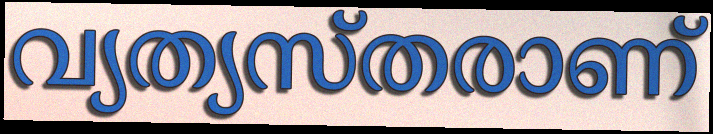
വ്യത്യസ്തരാണ്